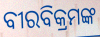
ବୀରବିକ୍ରମଙ୍କ